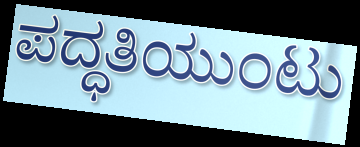
ಪದ್ಧತಿಯುಂಟು